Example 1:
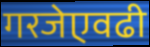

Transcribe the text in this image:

गरजेएवढी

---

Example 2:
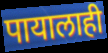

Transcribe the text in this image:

पायालाही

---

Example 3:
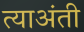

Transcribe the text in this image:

त्याअंती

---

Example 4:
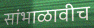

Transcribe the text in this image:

सांभाळावीच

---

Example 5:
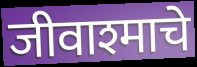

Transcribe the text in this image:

जीवाश्माचे